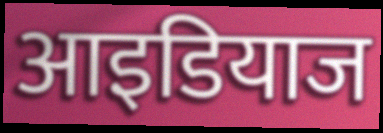
आइडियाज